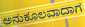
ಅನುಕೂಲವಾದಾಗ